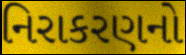
નિરાકરણનો